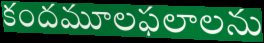
కందమూలఫలాలను